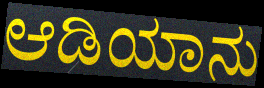
ಆಡಿಯಾನು